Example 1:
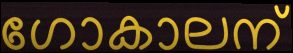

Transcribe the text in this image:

ഗോകാലന്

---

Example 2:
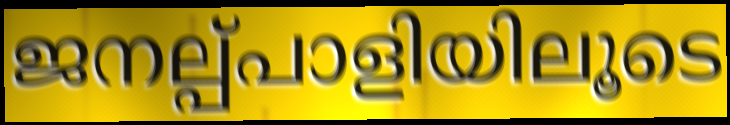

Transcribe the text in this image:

ജനല്പ്പാളിയിലൂടെ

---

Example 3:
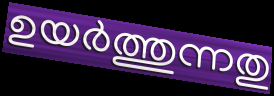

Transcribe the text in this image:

ഉയർത്തുന്നതു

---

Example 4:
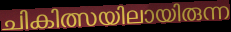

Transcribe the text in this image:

ചികിത്സയിലായിരുന്ന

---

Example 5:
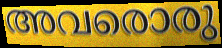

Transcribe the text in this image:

അവരൊരു